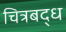
चित्रबद्ध